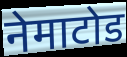
नेमाटोड